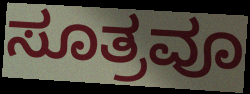
ಸೂತ್ರವೂ